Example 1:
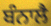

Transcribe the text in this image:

ਬੰਨਾਲੈ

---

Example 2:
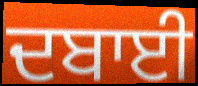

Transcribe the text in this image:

ਦਬਾਈ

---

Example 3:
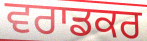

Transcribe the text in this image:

ਵਰਾਡਕਰ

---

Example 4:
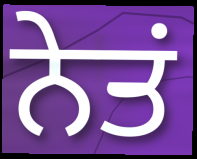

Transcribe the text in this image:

ਨੇਤਂ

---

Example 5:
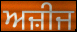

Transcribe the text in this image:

ਅਜ਼ੀਜ